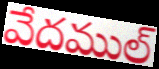
వేదముల్